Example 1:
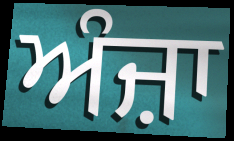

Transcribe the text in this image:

ਅੰਜ਼ਾ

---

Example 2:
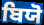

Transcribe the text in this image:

ਬਿਯੋ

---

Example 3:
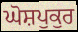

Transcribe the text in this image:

ਘੋਸ਼ਪੁਕੁਰ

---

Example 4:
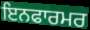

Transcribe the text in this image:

ਇਨਫਾਰਮਰ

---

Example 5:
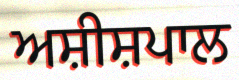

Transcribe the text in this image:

ਅਸ਼ੀਸ਼ਪਾਲ